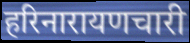
हरिनारायणचारी